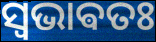
ସ୍ଵଭାଵତଃ